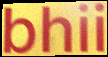
bhii